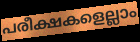
പരീക്ഷകളെല്ലാം